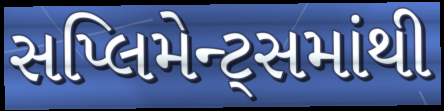
સપ્લિમેન્ટ્સમાંથી